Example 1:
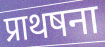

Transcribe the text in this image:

प्राथषना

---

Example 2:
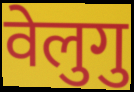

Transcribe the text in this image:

वेलुगु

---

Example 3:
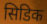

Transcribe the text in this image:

सिडिक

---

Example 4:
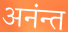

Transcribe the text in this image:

अनंन्त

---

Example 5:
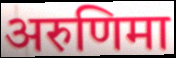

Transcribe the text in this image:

अरुणिमा